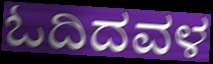
ಓದಿದವಳ